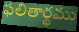
ఫలితార్థము